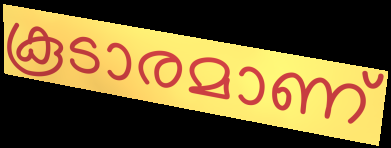
കൂടാരമാണ്